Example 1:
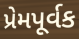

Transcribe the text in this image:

પ્રેમપૂર્વક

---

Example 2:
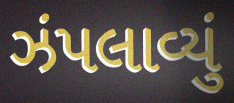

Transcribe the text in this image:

ઝંપલાવ્યું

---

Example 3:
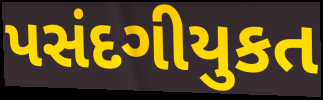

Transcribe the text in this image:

પસંદગીયુકત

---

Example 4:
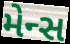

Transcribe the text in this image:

મેન્સ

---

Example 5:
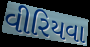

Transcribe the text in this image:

વીરિયવા